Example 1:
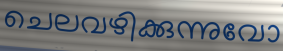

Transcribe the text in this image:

ചെലവഴിക്കുന്നുവോ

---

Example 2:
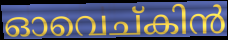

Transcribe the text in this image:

ഓവെച്കിൻ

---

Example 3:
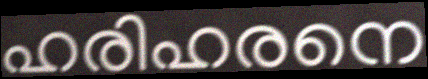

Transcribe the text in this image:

ഹരിഹരനെ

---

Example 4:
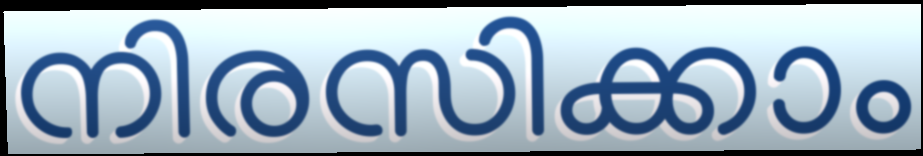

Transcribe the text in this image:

നിരസിക്കാം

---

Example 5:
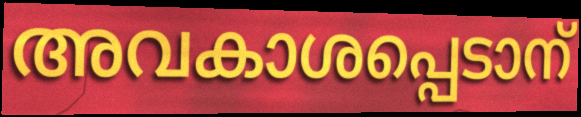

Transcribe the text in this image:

അവകാശപ്പെടാന്